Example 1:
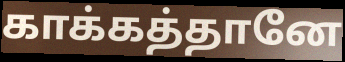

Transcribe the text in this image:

காக்கத்தானே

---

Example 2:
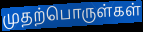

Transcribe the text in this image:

முதற்பொருள்கள்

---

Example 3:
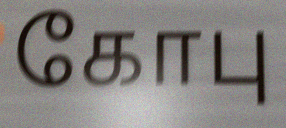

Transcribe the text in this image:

கோபு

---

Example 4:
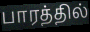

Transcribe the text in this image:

பாரத்தில்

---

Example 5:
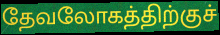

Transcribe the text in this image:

தேவலோகத்திற்குச்